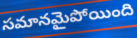
సమానమైపోయింది